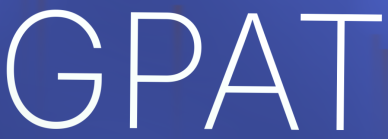
GPAT